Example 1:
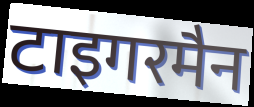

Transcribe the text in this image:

टाइगरमैन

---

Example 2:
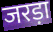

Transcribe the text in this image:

जरड़ा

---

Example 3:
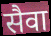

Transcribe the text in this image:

सैवा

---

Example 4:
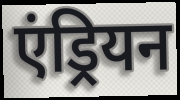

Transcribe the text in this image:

एंड्रियन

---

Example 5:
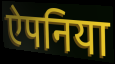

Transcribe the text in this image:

ऐपनिया